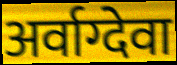
अर्वाग्देवा